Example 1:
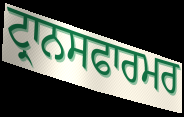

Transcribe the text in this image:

ਟ੍ਰਾਨਸਫਾਰਮਰ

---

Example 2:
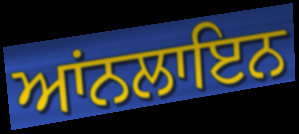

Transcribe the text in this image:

ਆਂਨਲਾਇਨ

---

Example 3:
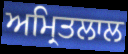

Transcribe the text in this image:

ਅਮ੍ਰਿਤਲਾਲ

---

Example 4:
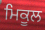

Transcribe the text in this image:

ਮਿਕੂਲ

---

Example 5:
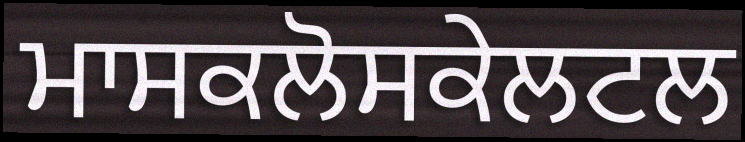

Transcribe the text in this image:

ਮਾਸਕਲੋਸਕੇਲਟਲ